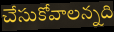
చేసుకోవాలన్నది